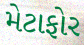
મેટાફોર